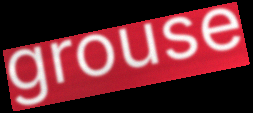
grouse